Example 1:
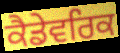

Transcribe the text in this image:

ਕੈਡੇਵਰਿਕ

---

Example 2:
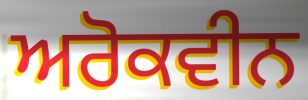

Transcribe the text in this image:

ਅਰੋਕਵੀਨ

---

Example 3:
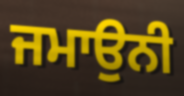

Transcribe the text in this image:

ਜਮਾਉਨੀ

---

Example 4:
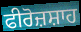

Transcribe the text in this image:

ਫੀਰੋਜ਼ਸ਼ਾਹ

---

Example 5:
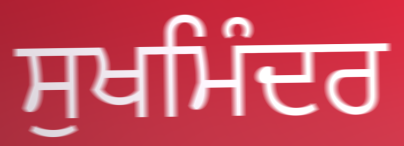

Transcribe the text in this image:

ਸੁਖਮਿੰਦਰ